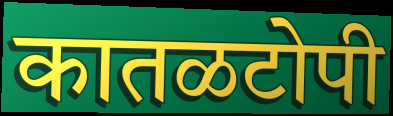
कातळटोपी